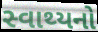
સ્વાથ્યનો